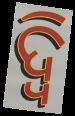
ଦ୍ଵି